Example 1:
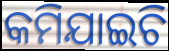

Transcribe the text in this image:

କମିଯାଇଚି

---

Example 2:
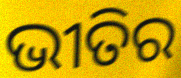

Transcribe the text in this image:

ଭୀତିର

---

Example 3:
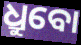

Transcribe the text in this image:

ଧ୍ରୁବୋ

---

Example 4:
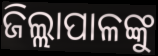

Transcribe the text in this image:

ଜିଲ୍ଲାପାଳଙ୍କୁ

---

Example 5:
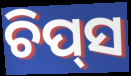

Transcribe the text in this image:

ଚିପ୍‌ସ